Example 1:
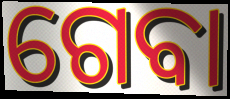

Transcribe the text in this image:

ଗେବା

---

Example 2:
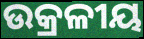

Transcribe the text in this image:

ଉକ୍ରଳୀୟ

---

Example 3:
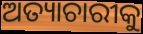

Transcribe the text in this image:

ଅତ୍ୟାଚାରୀକୁ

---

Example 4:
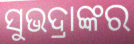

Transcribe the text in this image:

ସୁଭଦ୍ରାଙ୍କର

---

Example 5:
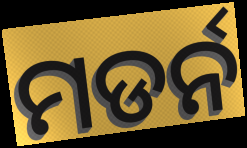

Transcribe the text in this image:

ମଡର୍ନ